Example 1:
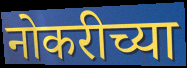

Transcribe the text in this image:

नोकरीच्या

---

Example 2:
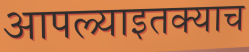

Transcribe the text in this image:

आपल्याइतक्याच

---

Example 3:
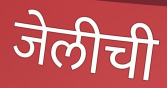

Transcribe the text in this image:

जेलीची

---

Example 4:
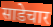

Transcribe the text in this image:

साडेचार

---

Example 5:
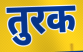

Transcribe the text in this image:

तुरक